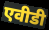
एवीडी